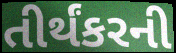
તીર્થંકરની